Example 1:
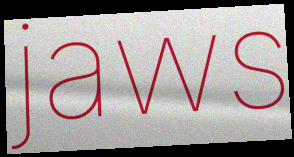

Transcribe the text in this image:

jaws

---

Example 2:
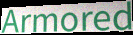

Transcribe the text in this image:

Armored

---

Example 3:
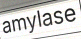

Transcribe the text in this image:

amylase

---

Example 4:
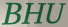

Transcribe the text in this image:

BHU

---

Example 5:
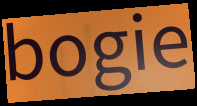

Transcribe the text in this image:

bogie